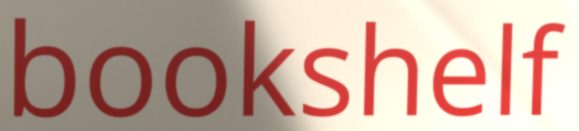
bookshelf